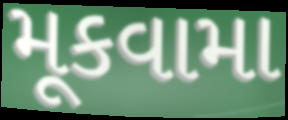
મૂકવામા